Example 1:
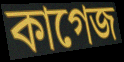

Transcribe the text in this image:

কাগেজ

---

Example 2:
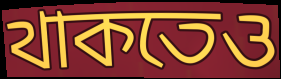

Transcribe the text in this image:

থাকতেও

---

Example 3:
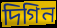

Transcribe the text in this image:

দিগিন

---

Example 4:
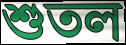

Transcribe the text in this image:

শুতল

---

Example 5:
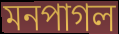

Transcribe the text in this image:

মনপাগল